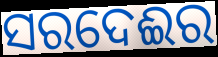
ସରଦେଈର